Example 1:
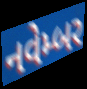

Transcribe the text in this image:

નવેમ્બર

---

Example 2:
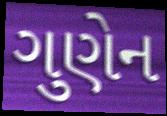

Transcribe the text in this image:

ગુણેન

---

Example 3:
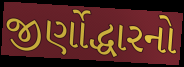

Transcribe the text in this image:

જીર્ણોદ્ધારનો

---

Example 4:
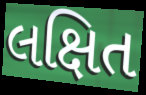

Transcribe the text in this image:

લક્ષિત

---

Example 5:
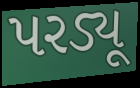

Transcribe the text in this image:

પરડ્યૂ